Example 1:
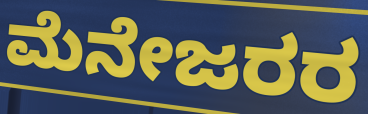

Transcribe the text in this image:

ಮೆನೇಜರರ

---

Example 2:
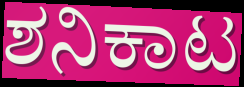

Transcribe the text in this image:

ಶನಿಕಾಟ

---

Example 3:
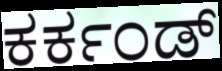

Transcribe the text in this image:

ಕರ್ಕಂಡ್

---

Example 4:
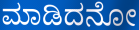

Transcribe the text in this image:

ಮಾಡಿದನೋ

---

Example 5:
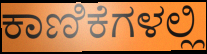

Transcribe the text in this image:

ಕಾಣಿಕೆಗಳಲ್ಲಿ